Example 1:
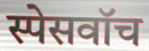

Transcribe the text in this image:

स्पेसवॉच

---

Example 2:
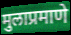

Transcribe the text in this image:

मुलाप्रमाणे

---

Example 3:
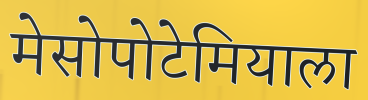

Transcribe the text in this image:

मेसोपोटेमियाला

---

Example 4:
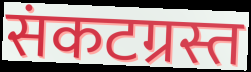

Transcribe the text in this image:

संकटग्रस्त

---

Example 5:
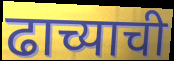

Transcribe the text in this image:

ढाच्याची